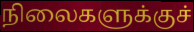
நிலைகளுக்குச்